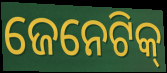
ଜେନେଟିକ୍